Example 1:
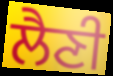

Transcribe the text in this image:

ਲੈਣੀ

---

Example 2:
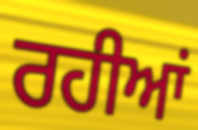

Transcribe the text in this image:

ਰਹੀਆਂ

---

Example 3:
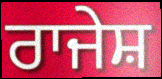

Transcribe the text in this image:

ਰਾਜੇਸ਼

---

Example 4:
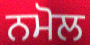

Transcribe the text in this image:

ਨਮੋਲ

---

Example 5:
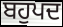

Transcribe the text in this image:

ਬਹੁਪਦ